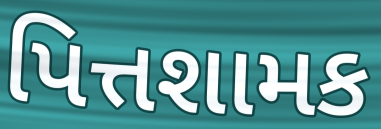
પિત્તશામક